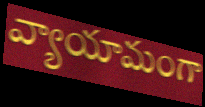
వ్యాయామంగా